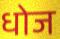
धोज